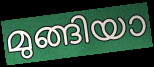
മുങ്ങിയാ